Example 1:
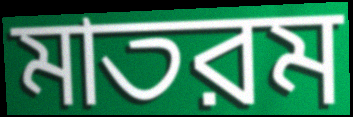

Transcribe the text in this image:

মাতরম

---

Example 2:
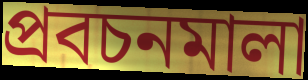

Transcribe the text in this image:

প্রবচনমালা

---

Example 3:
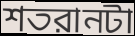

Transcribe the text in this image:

শতরানটা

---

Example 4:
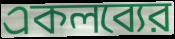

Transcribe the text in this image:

একলব্যের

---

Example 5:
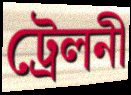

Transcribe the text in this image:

ট্রেলনী